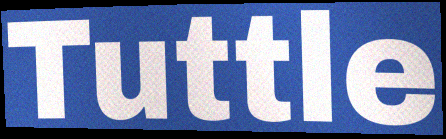
Tuttle